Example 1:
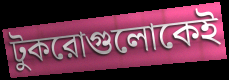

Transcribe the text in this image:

টুকরোগুলোকেই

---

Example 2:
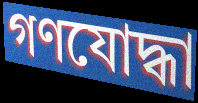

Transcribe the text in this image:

গণযোদ্ধা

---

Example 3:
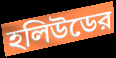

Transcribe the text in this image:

হলিউডের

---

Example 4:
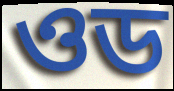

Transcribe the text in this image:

ওড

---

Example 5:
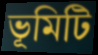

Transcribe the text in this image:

ভূমিটি